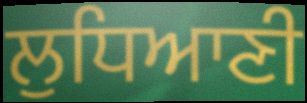
ਲੁਧਿਆਣੀ